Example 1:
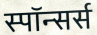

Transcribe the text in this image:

स्पॉन्सर्स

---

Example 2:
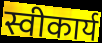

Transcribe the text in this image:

स्वीकार्य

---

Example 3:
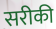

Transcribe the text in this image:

सरीकी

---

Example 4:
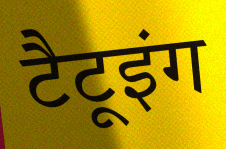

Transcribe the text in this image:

टैटूइंग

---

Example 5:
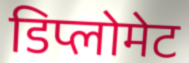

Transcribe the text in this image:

डिप्लोमेट